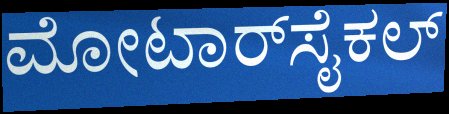
ಮೋಟಾರ್‌ಸೈಕಲ್